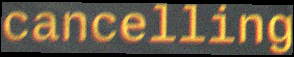
cancelling